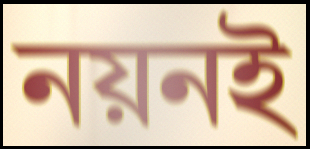
নয়নই